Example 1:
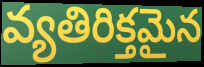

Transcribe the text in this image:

వ్యతిరిక్తమైన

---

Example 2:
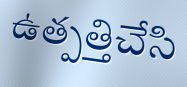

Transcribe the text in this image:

ఉత్పత్తిచేసి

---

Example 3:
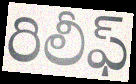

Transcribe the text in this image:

రిలీఫ్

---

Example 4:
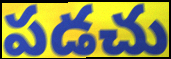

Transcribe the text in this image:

పడచు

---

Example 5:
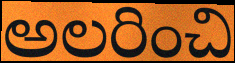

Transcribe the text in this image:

అలరించి